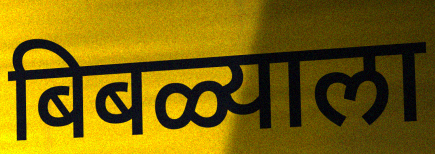
बिबळ्याला